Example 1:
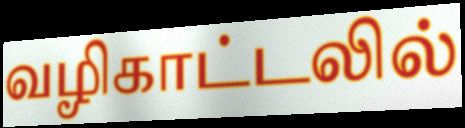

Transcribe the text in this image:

வழிகாட்டலில்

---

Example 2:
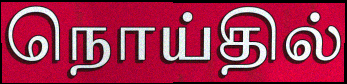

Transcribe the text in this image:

நொய்தில்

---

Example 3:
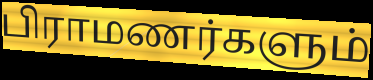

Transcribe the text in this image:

பிராமணர்களும்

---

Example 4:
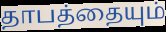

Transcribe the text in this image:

தாபத்தையும்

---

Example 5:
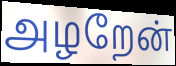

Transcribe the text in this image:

அழறேன்